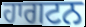
ਹਾਗਟਨ